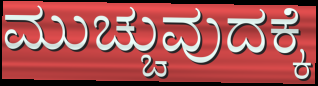
ಮುಚ್ಚುವುದಕ್ಕೆ